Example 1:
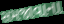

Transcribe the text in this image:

સમજાવાના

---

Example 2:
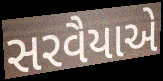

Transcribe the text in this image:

સરવૈયાએ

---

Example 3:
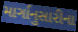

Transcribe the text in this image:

માર્ગાનુસારીના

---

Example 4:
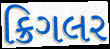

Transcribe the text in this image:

ક્રિગલર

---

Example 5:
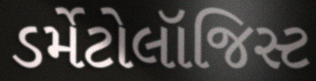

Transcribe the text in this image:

ડર્મેટોલૉજિસ્ટ